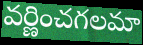
వర్ణించగలమా